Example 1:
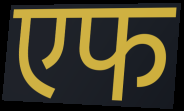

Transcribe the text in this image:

एफ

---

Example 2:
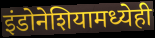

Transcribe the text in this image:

इंडोनेशियामध्येही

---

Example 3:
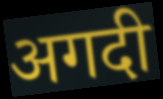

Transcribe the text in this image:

अगदी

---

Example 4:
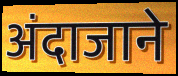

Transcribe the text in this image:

अंदाजाने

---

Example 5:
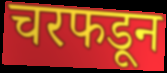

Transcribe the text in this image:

चरफडून